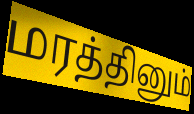
மரத்தினும்